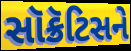
સૉક્રૅટિસને